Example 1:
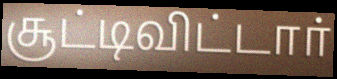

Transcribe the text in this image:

சூட்டிவிட்டார்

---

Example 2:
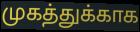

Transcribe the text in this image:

முகத்துக்காக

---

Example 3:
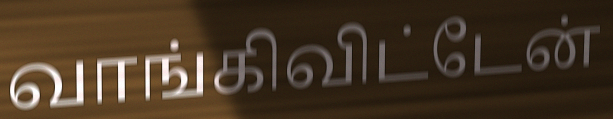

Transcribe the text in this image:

வாங்கிவிட்டேன்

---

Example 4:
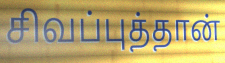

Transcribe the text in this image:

சிவப்புத்தான்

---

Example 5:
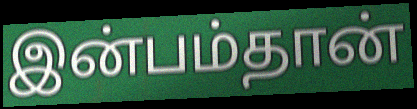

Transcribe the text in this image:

இன்பம்தான்